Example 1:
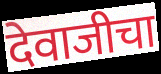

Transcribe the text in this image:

देवाजीचा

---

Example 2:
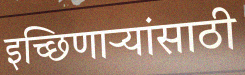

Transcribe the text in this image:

इच्छिणाऱ्यांसाठी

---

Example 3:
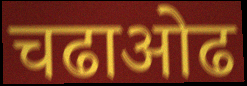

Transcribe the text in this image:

चढाओढ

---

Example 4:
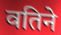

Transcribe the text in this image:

वतिने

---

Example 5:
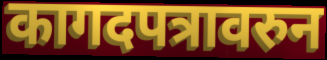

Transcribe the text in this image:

कागदपत्रावरुन